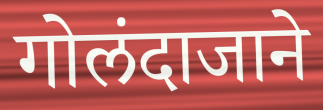
गोलंदाजाने